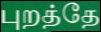
புறத்தே